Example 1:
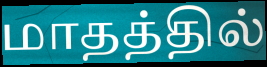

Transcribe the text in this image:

மாதத்தில்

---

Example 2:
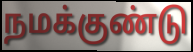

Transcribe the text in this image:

நமக்குண்டு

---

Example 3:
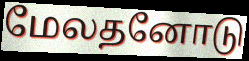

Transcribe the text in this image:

மேலதனோடு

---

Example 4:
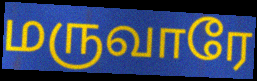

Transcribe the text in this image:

மருவாரே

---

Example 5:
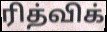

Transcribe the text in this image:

ரித்விக்